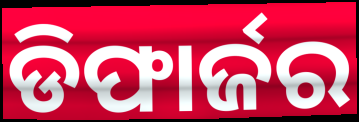
ଡିଫାର୍ଜର